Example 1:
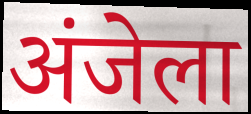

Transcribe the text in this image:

अंजेला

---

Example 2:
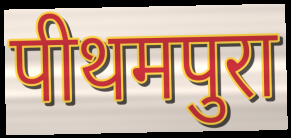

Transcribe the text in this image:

पीथमपुरा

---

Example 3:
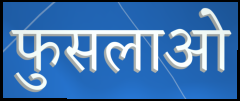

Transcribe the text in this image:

फुसलाओ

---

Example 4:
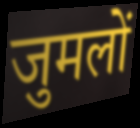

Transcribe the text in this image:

जुमलों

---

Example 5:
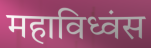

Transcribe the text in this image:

महाविध्वंस